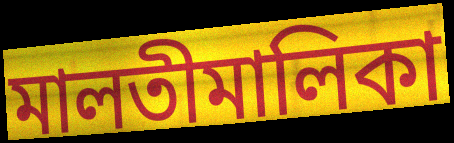
মালতীমালিকা